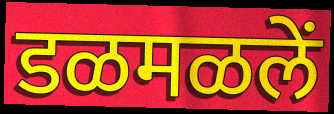
डळमळलें